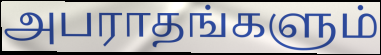
அபராதங்களும்